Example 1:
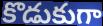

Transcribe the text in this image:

కొడుకుగా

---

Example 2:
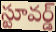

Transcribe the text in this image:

స్టూవర్డ్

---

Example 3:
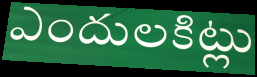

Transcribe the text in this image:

ఎందులకిట్లు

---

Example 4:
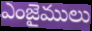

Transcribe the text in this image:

ఎంజైములు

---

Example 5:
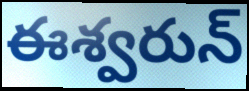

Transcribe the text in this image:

ఈశ్వరున్